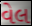
વેલ